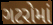
ગટરોમાં